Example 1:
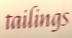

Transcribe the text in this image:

tailings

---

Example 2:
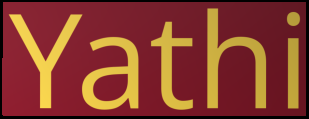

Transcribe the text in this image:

Yathi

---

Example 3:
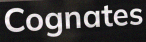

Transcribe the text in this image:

Cognates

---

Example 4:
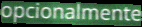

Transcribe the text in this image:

opcionalmente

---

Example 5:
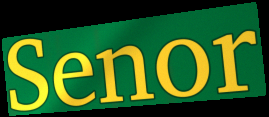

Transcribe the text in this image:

Senor